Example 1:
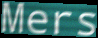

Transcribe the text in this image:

Mers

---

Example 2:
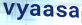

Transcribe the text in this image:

vyaasa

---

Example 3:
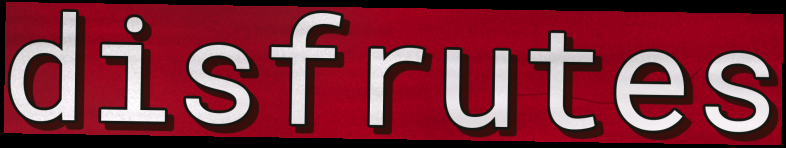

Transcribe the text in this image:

disfrutes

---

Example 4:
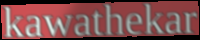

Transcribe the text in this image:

kawathekar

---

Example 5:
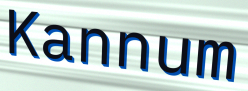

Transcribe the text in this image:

Kannum